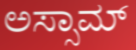
ಅಸ್ಸಾಮ್